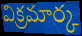
విక్రమార్క